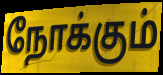
நோக்கும்